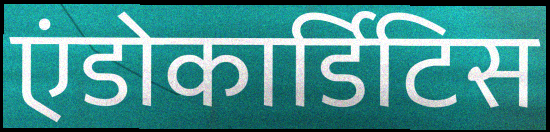
एंडोकार्डिटिस